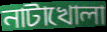
নাটাখোলা